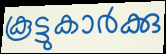
കൂട്ടുകാർക്കു